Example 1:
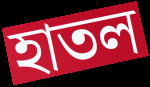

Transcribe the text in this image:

হাতল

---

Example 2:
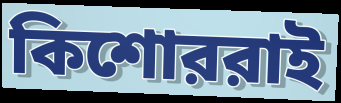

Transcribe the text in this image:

কিশোররাই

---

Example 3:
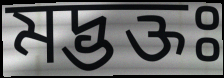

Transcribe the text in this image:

মদ্ভক্তঃ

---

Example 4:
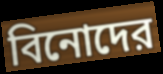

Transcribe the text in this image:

বিনোদের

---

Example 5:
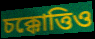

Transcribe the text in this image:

চক্কোত্তিও